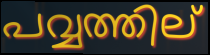
പവ്വത്തില്